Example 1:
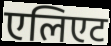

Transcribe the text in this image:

एलिएट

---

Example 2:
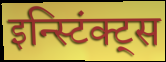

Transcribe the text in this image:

इन्स्टिंक्ट्स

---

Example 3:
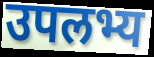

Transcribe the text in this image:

उपलभ्य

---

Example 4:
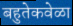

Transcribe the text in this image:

बहुतेकवेळा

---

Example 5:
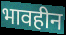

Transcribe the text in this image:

भावहीन